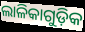
ଲାଳିକାଗୁଡ଼ିକ